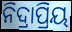
ନିଦ୍ରାପ୍ରିୟ